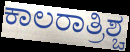
ಕಾಲರಾತ್ರಿಶ್ಚ